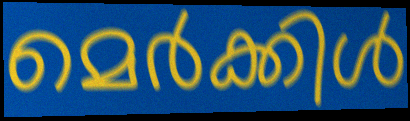
മെർക്കിൾ